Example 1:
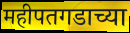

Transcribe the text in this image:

महीपतगडाच्या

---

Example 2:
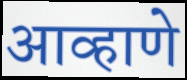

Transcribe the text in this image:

आव्हाणे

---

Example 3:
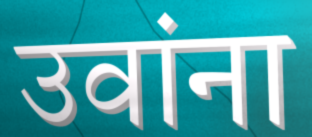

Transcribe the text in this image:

उवांना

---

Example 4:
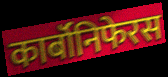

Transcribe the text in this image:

कार्बॉनिफेरस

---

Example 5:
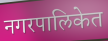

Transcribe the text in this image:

नगरपालिकेत